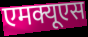
एमक्यूएस